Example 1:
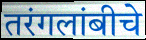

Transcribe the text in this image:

तरंगलांबीचे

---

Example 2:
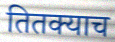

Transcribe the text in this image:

तितक्याच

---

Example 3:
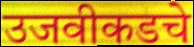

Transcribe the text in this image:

उजवीकडचे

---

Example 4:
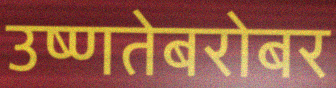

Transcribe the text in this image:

उष्णतेबरोबर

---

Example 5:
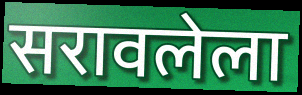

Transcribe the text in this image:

सरावलेला